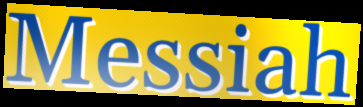
Messiah